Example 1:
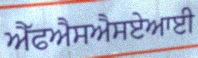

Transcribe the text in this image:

ਐੱਫਐਸਐਸਏਆਈ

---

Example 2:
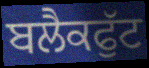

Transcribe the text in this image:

ਬਲੈਕਫੁੱਟ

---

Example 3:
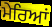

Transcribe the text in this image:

ਮੇਰਿਆਂ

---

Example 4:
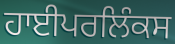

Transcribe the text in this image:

ਹਾਈਪਰਲਿੰਕਸ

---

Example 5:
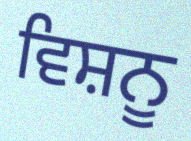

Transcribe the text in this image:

ਵਿਸ਼ਨੂ